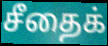
சீதைக்